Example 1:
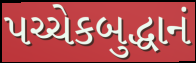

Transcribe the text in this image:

પચ્ચેકબુદ્ધાનં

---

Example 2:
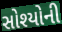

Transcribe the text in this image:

સોશ્યોની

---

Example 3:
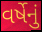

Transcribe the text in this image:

વર્ષેનું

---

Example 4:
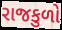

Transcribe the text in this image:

રાજકુળો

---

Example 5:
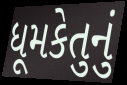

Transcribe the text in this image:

ધૂમકેતુનું